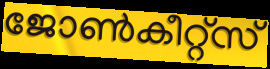
ജോൺകീറ്റ്സ്